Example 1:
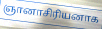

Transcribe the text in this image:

ஞானாசிரியனாக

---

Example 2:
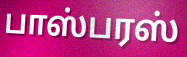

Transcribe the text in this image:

பாஸ்பரஸ்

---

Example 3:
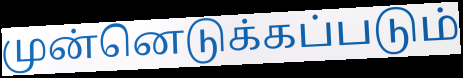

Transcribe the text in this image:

முன்னெடுக்கப்படும்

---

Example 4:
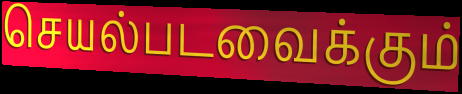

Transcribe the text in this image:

செயல்படவைக்கும்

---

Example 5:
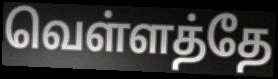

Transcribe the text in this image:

வெள்ளத்தே